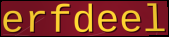
erfdeel